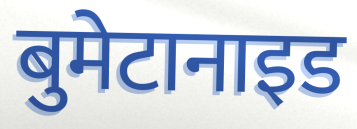
बुमेटानाइड